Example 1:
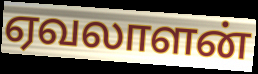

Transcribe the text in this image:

ஏவலாளன்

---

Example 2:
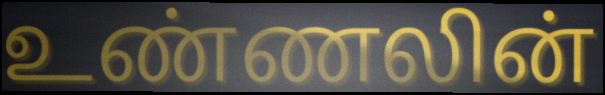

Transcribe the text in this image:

உண்ணலின்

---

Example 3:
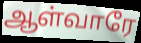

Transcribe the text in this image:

ஆள்வாரே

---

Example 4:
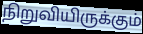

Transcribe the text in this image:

நிறுவியிருக்கும்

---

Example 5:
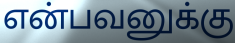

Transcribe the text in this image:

என்பவனுக்கு